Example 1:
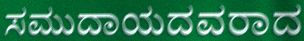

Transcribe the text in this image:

ಸಮುದಾಯದವರಾದ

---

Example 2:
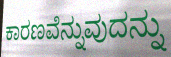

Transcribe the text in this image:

ಕಾರಣವೆನ್ನುವುದನ್ನು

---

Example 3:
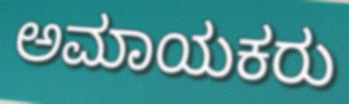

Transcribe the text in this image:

ಅಮಾಯಕರು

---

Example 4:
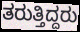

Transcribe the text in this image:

ತರುತ್ತಿದ್ದರು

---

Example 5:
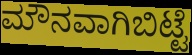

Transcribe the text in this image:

ಮೌನವಾಗಿಬಿಟ್ಟೆ